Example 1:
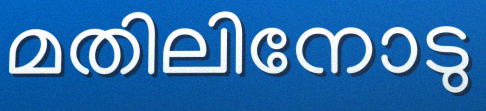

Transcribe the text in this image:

മതിലിനോടു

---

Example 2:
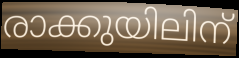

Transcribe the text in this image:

രാക്കുയിലിന്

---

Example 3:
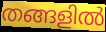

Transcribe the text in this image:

തങ്ങളിൽ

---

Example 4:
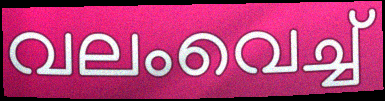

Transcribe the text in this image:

വലംവെച്ച്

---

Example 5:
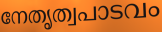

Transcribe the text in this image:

നേതൃത്വപാടവം